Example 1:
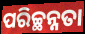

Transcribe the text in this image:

ପରିଚ୍ଛନ୍ନତା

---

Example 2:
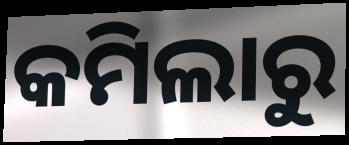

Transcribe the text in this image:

କମିଲାରୁ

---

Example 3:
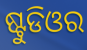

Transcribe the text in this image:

ଷ୍ଟୁଡିଓର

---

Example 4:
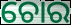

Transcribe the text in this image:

ଚୋର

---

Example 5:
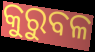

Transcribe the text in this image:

କୁରୁବଳ